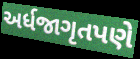
અર્ધજાગૃતપણે